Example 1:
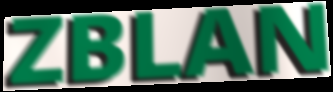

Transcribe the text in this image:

ZBLAN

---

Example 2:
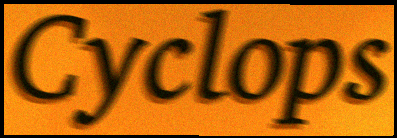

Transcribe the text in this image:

Cyclops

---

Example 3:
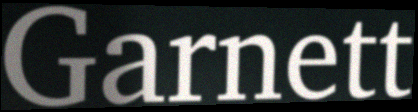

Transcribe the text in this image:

Garnett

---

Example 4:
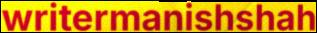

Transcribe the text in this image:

writermanishshah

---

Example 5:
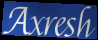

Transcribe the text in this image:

Axresh